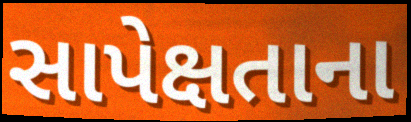
સાપેક્ષતાના